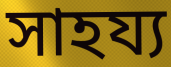
সাহয্য